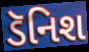
ડૅનિશ